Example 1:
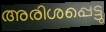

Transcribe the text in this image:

അരിശപ്പെട്ടു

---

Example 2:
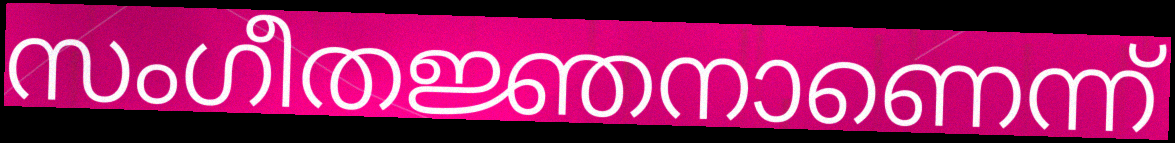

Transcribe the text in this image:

സംഗീതജ്ഞനാണെന്ന്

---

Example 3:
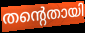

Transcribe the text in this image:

തന്റെതായി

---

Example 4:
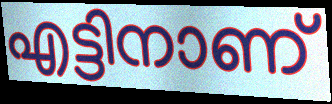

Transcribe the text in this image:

എട്ടിനാണ്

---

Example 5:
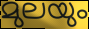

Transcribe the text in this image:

മുലയും